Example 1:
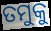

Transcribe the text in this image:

ତମୁକୁ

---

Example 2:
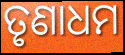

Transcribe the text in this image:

ତୃଣାଧମ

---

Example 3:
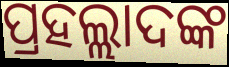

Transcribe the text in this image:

ପ୍ରହଲ୍ଲାଦଙ୍କ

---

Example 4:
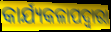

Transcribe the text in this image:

କାର୍ଯ୍ୟକଳାପଦ୍ୱାରା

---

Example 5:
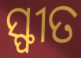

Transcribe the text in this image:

ସ୍ଫୀତ